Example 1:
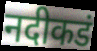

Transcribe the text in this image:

नदीकडं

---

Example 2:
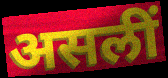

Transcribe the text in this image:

असलीं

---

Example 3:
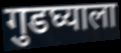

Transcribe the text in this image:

गुडघ्याला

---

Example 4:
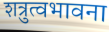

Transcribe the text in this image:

शत्रुत्वभावना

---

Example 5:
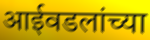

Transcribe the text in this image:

आईवडलांच्या